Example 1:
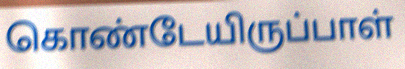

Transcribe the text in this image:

கொண்டேயிருப்பாள்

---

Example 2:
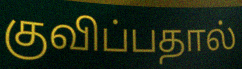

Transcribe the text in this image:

குவிப்பதால்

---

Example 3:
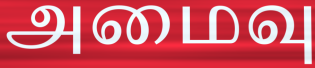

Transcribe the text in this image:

அமைவு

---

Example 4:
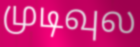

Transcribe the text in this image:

முடிவுல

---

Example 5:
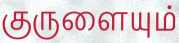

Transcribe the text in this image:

குருளையும்